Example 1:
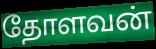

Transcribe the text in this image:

தோளவன்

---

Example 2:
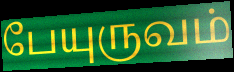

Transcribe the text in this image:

பேயுருவம்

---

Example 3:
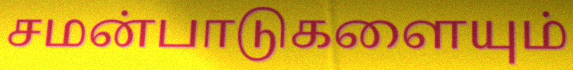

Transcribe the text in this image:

சமன்பாடுகளையும்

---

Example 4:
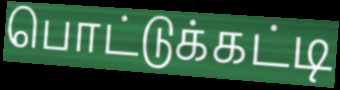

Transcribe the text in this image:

பொட்டுக்கட்டி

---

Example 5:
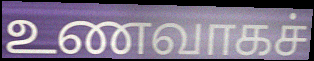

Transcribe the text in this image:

உணவாகச்